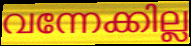
വന്നേക്കില്ല